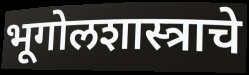
भूगोलशास्त्राचे